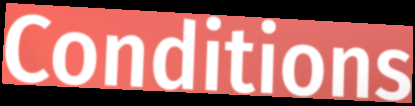
Conditions